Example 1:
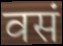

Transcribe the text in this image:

वसं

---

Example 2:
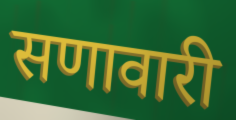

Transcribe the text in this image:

सणावारी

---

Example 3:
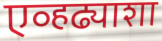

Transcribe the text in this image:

एव्हढ्याशा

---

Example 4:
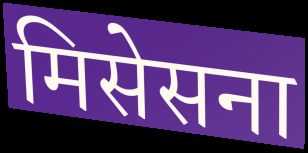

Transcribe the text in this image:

मिसेसना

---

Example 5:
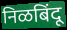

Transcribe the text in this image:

निळबिंदू